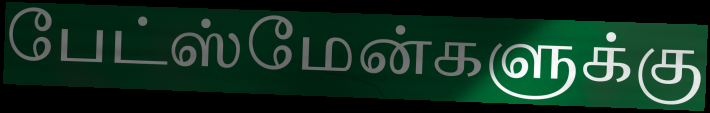
பேட்ஸ்மேன்களுக்கு